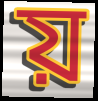
য়